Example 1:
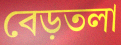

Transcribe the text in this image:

বেড়তলা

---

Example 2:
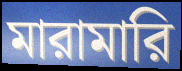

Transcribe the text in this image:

মারামারি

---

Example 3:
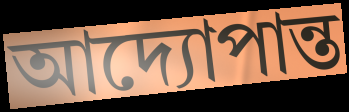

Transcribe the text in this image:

আদ্যোপান্ত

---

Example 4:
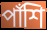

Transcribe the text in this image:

পাঁশি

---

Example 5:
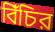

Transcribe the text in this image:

বিঁচির